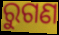
ରୁଗଣ